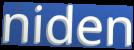
niden